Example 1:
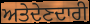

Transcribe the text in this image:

ਅਤੇਦੇਣਦਾਰੀ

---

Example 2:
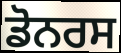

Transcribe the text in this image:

ਡੋਨਰਸ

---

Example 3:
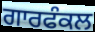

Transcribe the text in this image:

ਗਾਰਫੰਕਲ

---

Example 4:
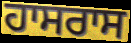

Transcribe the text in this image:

ਹਾਸਰਾਸ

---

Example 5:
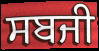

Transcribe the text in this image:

ਸਬਜੀ